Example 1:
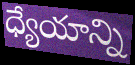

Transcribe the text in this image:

ధ్యేయాన్ని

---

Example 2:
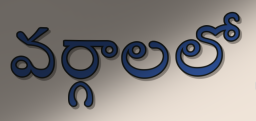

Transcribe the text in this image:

వర్గాలలో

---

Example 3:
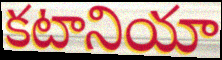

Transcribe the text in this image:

కటానియా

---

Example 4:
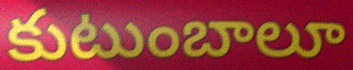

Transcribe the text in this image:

కుటుంబాలూ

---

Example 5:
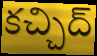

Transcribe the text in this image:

కచ్చిద్